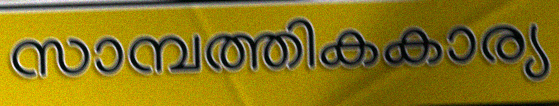
സാമ്പത്തികകാര്യ